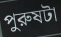
পুরুষটা